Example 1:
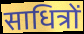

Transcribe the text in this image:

साधित्रों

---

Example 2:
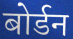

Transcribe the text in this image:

बोर्डन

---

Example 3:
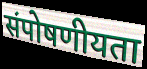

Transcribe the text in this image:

संपोषणीयता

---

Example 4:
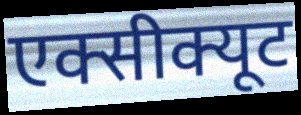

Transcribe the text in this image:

एक्सीक्यूट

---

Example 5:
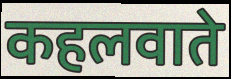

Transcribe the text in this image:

कहलवाते